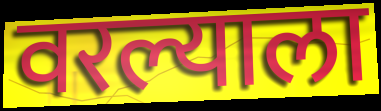
वरल्याला